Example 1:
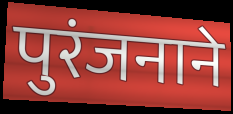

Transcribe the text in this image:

पुरंजनाने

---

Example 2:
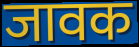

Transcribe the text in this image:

जावक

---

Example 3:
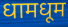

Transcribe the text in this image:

धामधूम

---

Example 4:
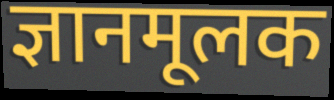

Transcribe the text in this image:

ज्ञानमूलक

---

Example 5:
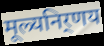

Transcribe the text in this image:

मूल्यनिर्णय